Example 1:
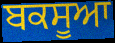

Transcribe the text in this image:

ਬਕਸੂਆ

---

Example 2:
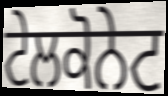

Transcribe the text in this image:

ਟੇਲਕੋਨੇਟ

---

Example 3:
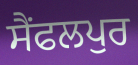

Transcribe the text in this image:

ਸੈਂਫਲਪੁਰ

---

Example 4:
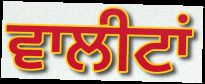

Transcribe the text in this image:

ਵਾਲੀਟਾਂ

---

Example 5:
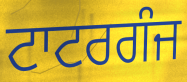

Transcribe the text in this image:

ਟਾਟਰਗੰਜ